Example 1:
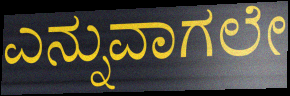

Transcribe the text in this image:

ಎನ್ನುವಾಗಲೇ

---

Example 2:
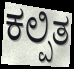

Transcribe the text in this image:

ಕಲ್ಪಿತ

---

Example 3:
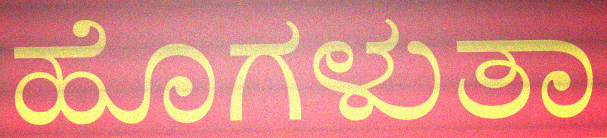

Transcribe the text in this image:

ಹೊಗಳುತಾ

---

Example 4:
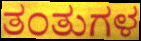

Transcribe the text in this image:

ತಂತುಗಳ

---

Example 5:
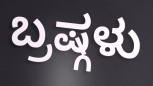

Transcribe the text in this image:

ಬ್ರಷ್ಗಳು